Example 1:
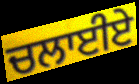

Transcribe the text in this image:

ਚਲਾਈਏ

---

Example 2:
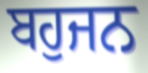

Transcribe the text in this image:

ਬਹੁਜਨ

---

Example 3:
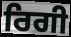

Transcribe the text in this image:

ਰਿਗੀ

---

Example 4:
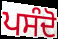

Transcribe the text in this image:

ਪਸੰਦੋ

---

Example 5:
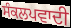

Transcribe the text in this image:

ਸੰਕਲਪਵਾਦੀ